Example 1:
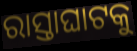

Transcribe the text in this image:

ରାସ୍ତାଘାଟକୁ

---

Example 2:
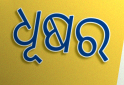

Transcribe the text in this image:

ଧୂଷର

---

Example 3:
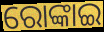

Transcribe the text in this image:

ରୋଙ୍କାଇ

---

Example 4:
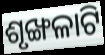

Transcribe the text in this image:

ଶୃଙ୍ଖଳାଟି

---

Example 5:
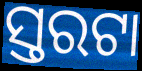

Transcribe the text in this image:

ସ୍ତରଟା